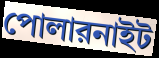
পোলারনাইট